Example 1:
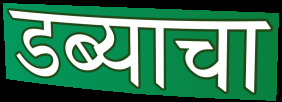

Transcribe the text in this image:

डब्याचा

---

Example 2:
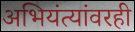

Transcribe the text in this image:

अभियंत्यांवरही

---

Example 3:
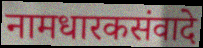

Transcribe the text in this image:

नामधारकसंवादे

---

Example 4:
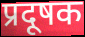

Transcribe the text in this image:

प्रदूषक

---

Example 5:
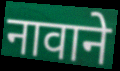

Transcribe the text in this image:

नावाने